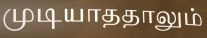
முடியாததாலும்